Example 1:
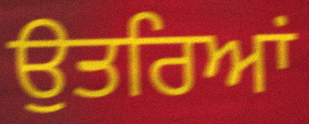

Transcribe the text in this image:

ਉਤਰਿਆਂ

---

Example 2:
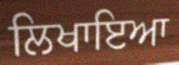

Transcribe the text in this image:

ਲਿਖਾਇਆ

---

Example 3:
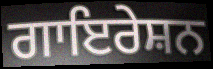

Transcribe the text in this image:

ਗਾਇਰੇਸ਼ਨ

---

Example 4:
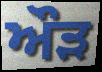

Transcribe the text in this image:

ਔਡ਼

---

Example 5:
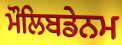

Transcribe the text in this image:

ਮੌਲਿਬਡੇਨਮ